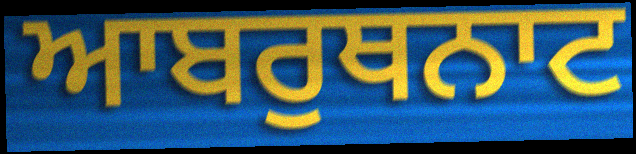
ਆਬਰੁਥਨਾਟ